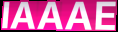
IAAAE